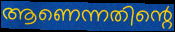
ആണെന്നതിന്റെ